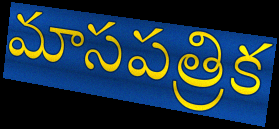
మాసపత్రిక